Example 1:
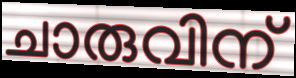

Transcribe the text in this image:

ചാരുവിന്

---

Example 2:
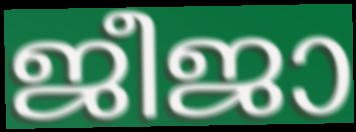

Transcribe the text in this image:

ജീജാ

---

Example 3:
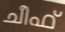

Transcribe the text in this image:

ചീഫ്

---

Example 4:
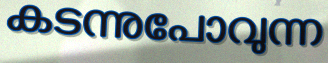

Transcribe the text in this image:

കടന്നുപോവുന്ന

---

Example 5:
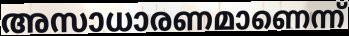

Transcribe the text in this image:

അസാധാരണമാണെന്ന്